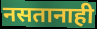
नसतानाही